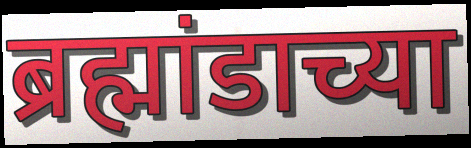
ब्रह्मांडाच्या